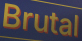
Brutal